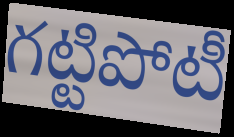
గట్టిపోటీ